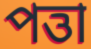
পত্তা